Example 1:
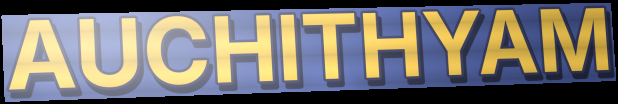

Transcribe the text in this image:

AUCHITHYAM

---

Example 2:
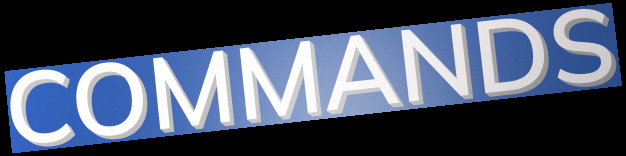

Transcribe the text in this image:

COMMANDS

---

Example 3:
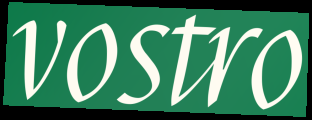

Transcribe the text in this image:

vostro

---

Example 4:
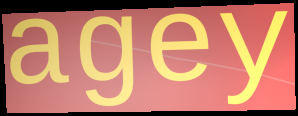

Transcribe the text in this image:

agey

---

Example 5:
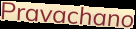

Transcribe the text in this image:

Pravachano